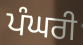
ਪੰਘਰੀ